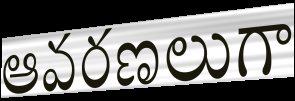
ఆవరణలుగా